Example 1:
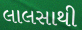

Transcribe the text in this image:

લાલસાથી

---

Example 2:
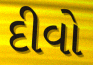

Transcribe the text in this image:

દીવો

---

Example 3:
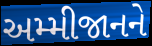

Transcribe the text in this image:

અમ્મીજાનને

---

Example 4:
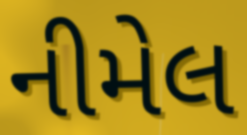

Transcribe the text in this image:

નીમેલ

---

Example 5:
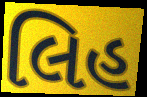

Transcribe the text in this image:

લિહ